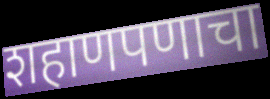
शहाणपणाचा